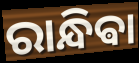
ରାନ୍ଧିଵା